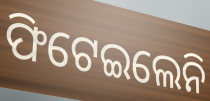
ଫିଟେଇଲେନି